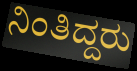
ನಿಂತಿದ್ದರು